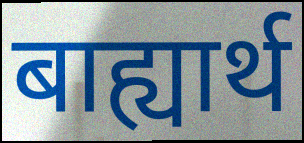
बाह्यार्थ